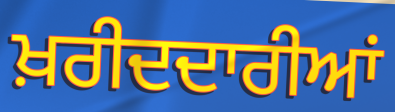
ਖ਼ਰੀਦਦਾਰੀਆਂ